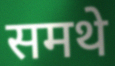
समथे